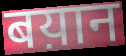
बय़ान